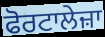
ਫੋਰਟਾਲੇਜ਼ਾ